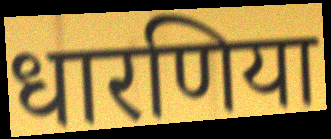
धारणिया